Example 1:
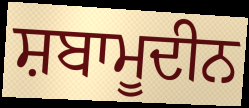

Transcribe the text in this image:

ਸ਼ਬਾਮੂਦੀਨ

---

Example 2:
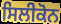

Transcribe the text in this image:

ਸਿਲੀਕੋਨ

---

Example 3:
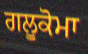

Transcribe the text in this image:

ਗਲੂਕੋਮਾ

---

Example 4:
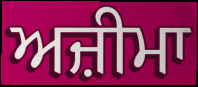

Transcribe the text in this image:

ਅਜ਼ੀਮਾ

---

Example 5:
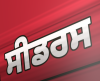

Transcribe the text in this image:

ਸੀਡਰਸ